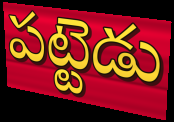
పట్టెడు